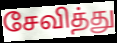
சேவித்து